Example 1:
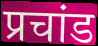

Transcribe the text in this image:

प्रचांड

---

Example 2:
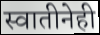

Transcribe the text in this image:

स्वातीनेही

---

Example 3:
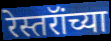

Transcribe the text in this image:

रेस्तरॉंच्या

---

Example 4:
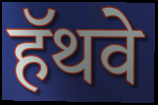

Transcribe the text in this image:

हॅथवे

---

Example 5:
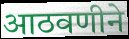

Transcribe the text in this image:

आठवणीने